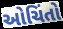
ઓચિંતો